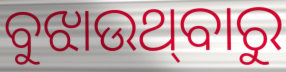
ବୁଝାଉଥ୍‌ବାରୁ